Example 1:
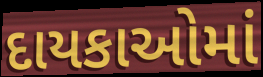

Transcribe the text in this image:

દાયકાઓમાં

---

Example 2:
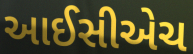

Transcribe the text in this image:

આઈસીએચ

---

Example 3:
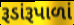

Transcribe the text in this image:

રૂડાંરૂપાળાં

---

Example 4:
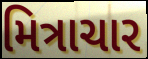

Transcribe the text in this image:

મિત્રાચાર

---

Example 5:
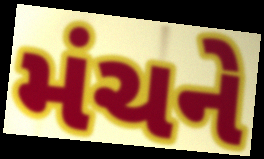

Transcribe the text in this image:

મંચને